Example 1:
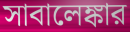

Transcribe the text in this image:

সাবালেঙ্কার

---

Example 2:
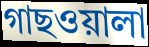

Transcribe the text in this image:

গাছওয়ালা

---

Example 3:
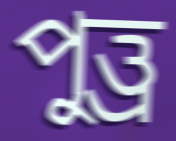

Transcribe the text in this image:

পুত্ত্র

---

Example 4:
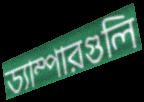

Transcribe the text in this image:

ড্যাম্পারগুলি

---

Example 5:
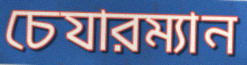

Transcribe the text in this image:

চেযারম্যান